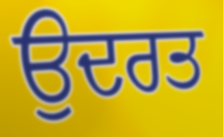
ਉਦਰਤ